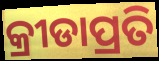
କ୍ରୀଡାପ୍ରତି